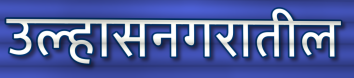
उल्हासनगरातील